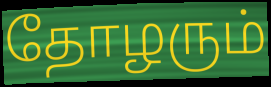
தோழரும்